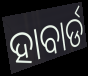
ହାବାର୍ଡ